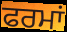
ਫਰਮਾਂ